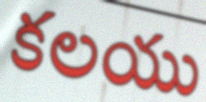
కలయు